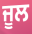
ਜੂਲ